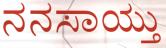
ನನಸಾಯ್ತು